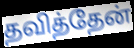
தவித்தேன்